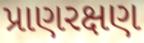
પ્રાણરક્ષણ